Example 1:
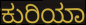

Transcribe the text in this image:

ಕುರಿಯಾ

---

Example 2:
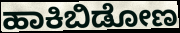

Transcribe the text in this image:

ಹಾಕಿಬಿಡೋಣ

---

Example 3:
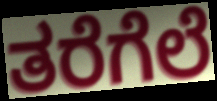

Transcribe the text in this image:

ತರೆಗೆಲೆ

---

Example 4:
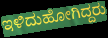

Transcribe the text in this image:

ಇಳಿದುಹೋಗಿದ್ದರು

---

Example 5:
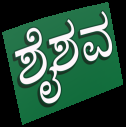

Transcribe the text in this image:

ಶೈಶವ